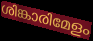
ശിങ്കാരിമേളം